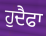
ਹੁਦੈਫਾ